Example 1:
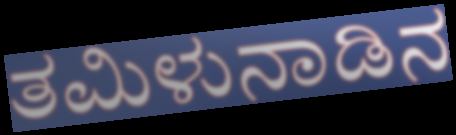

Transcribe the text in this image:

ತಮಿಳುನಾಡಿನ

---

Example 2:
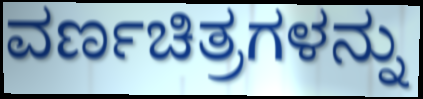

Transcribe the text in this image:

ವರ್ಣಚಿತ್ರಗಳನ್ನು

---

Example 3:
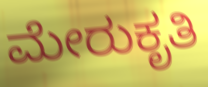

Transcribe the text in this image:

ಮೇರುಕೃತಿ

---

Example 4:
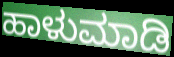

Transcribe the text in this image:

ಹಾಳುಮಾಡಿ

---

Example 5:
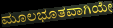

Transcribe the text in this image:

ಮೂಲಭೂತವಾಗಿಯೇ